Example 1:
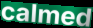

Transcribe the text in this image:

calmed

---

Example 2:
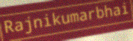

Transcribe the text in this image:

Rajnikumarbhai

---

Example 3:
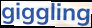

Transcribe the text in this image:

giggling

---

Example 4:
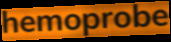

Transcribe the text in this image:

hemoprobe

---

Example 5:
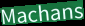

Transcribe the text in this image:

Machans